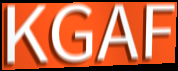
KGAF